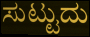
ಸುಟ್ಟುದು